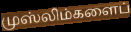
முஸ்லிம்களைப்